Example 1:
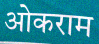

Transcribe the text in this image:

ओकराम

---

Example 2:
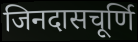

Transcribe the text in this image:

जिनदासचूर्णि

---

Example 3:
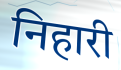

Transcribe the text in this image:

निहारी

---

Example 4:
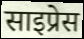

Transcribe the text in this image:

साइप्रेस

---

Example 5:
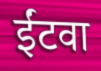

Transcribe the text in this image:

ईंटवा